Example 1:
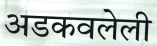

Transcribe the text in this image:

अडकवलेली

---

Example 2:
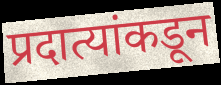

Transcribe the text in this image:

प्रदात्यांकडून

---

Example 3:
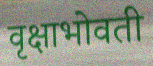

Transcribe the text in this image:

वृक्षाभोवती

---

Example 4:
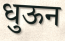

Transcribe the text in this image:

धुऊन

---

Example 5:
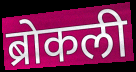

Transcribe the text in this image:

ब्रोकली